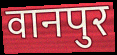
वानपुर